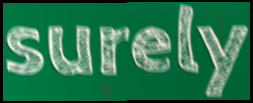
surely